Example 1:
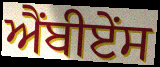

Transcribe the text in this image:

ਐਂਬੀਏਂਸ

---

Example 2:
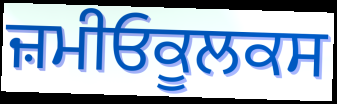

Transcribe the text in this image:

ਜ਼ਮੀਓਕੂਲਕਸ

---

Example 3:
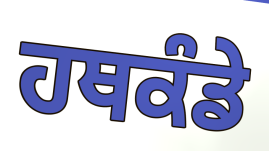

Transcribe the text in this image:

ਹਥਕੰਡੇ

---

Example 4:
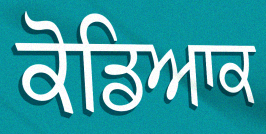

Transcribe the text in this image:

ਕੋਡਿਆਕ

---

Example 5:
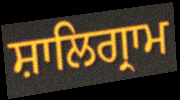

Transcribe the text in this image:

ਸ਼ਾਲਿਗ੍ਰਾਮ